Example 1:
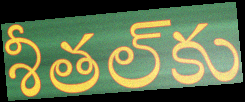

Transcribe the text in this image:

శీతల్‌కు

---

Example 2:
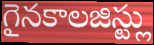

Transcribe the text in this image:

గైనకాలజిస్ట్లు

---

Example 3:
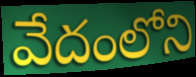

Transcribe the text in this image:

వేదంలోని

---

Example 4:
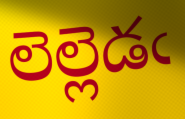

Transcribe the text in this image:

లెల్లెడఁ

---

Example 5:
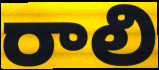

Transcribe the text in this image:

రాలి